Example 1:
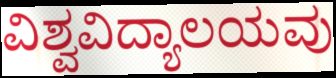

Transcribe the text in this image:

ವಿಶ್ವವಿದ್ಯಾಲಯವು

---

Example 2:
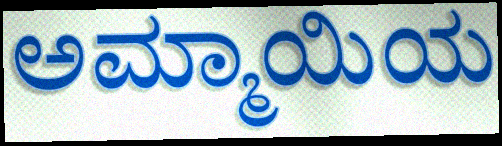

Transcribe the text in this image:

ಅಮ್ಮಾಯಿಯ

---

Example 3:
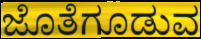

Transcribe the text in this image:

ಜೊತೆಗೂಡುವ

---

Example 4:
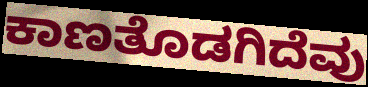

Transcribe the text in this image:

ಕಾಣತೊಡಗಿದೆವು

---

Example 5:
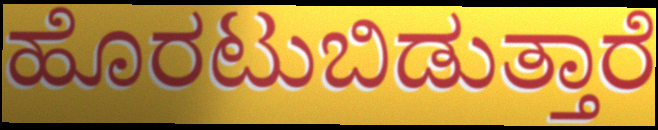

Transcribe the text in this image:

ಹೊರಟುಬಿಡುತ್ತಾರೆ